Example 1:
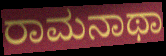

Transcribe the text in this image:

ರಾಮನಾಥಾ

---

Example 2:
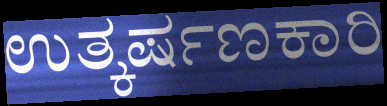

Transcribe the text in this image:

ಉತ್ಕರ್ಷಣಕಾರಿ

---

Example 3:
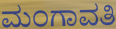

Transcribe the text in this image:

ಮಂಗಾವತಿ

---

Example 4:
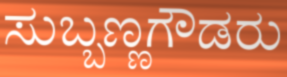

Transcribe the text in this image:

ಸುಬ್ಬಣ್ಣಗೌಡರು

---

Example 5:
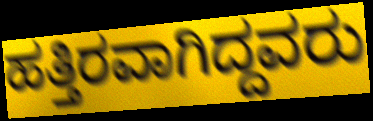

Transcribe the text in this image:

ಹತ್ತಿರವಾಗಿದ್ದವರು